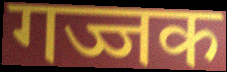
गज्जक